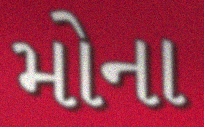
મોના